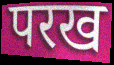
परख